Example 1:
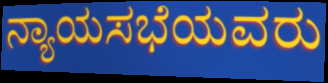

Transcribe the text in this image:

ನ್ಯಾಯಸಭೆಯವರು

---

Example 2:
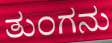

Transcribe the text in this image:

ತುಂಗನು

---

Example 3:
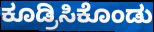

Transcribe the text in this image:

ಕೂಡ್ರಿಸಿಕೊಂಡು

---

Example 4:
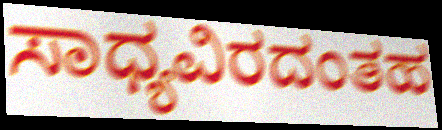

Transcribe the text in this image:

ಸಾಧ್ಯವಿರದಂತಹ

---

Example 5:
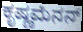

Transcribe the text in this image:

ಕೃಷ್ಣಮೆನನ್